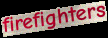
firefighters